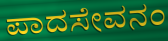
ಪಾದಸೇವನಂ